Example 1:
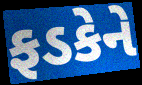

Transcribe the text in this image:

ફડકેને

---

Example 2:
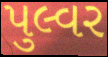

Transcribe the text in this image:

પુલ્વર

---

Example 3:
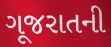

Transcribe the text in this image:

ગૂજરાતની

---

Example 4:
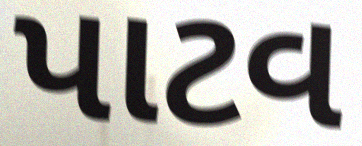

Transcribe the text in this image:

પાટવ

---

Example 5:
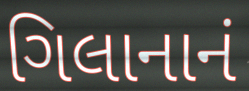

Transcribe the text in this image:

ગિલાનાનં